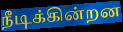
நீடிக்கின்றன